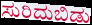
ಸುರಿದುಬಿಡು